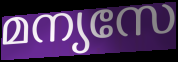
മന്യസേ